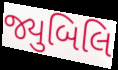
જ્યુબિલિ